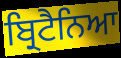
ਬ੍ਰਿਟੈਨਿਆ